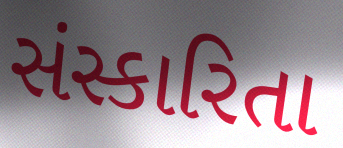
સંસ્કારિતા